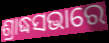
ଶ୍ରାଦ୍ଧସଭାରେ